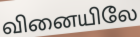
வினையிலே